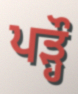
ਪੜ੍ਹੌ